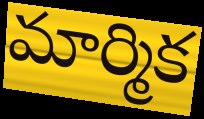
మార్మిక